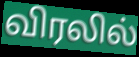
விரலில்